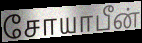
சோயாபீன்